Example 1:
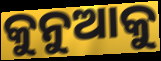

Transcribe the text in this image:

କୁନୁଆକୁ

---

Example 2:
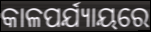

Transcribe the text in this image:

କାଳପର୍ଯ୍ୟାୟରେ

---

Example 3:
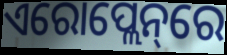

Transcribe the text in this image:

ଏରୋପ୍ଲେନ୍‌ରେ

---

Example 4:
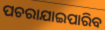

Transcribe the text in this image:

ପଚରାଯାଇପାରିବ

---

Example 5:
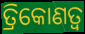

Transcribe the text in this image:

ତ୍ରିକୋଣତ୍ଵ